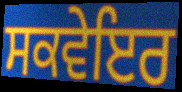
ਸਕਵੇਇਰ